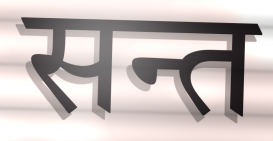
सन्‍त